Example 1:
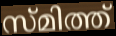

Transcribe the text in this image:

സ്മിത്ത്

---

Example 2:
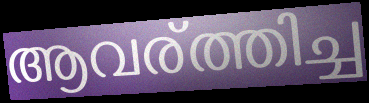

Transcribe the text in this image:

ആവര്ത്തിച്ച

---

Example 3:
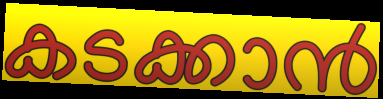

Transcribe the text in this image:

കടക്കാൻ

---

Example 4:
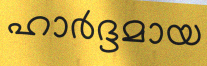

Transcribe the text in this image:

ഹാർദ്ദമായ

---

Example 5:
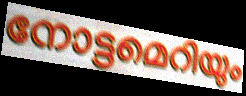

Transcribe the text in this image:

നോട്ടമെറിയും